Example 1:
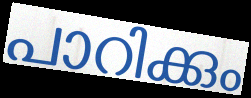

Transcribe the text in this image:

പാറിക്കും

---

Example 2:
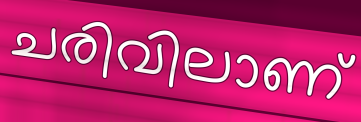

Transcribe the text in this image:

ചരിവിലാണ്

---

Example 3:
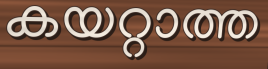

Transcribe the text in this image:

കയറ്റാത്ത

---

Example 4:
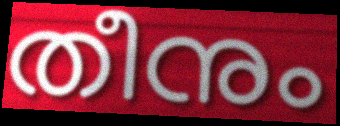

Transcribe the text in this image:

തീനും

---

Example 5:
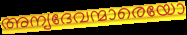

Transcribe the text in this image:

അന്യദേവന്മാരെയോ